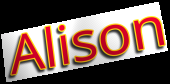
Alison